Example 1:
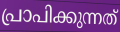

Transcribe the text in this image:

പ്രാപിക്കുന്നത്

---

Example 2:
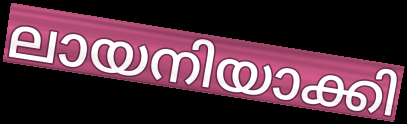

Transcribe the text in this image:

ലായനിയാക്കി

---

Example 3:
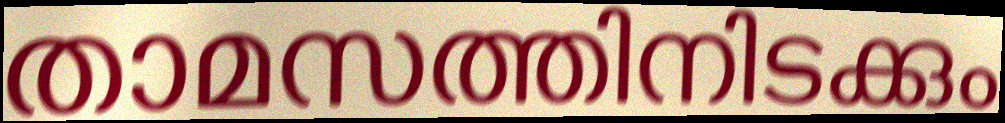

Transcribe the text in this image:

താമസത്തിനിടക്കും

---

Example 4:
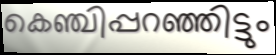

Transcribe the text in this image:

കെഞ്ചിപ്പറഞ്ഞിട്ടും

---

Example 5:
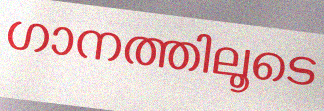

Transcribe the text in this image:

ഗാനത്തിലൂടെ